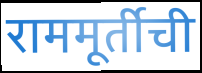
राममूर्तीची